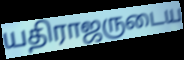
யதிராஜருடைய